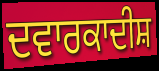
ਦਵਾਰਕਾਦੀਸ਼